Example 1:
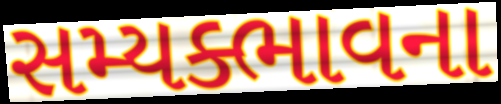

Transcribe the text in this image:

સમ્યક્ભાવના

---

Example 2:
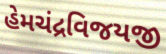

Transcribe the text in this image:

હેમચંદ્રવિજયજી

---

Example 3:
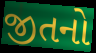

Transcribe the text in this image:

જીતનો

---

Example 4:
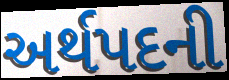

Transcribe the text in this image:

અર્થપદની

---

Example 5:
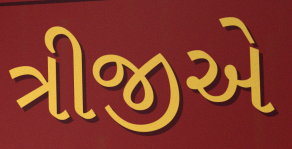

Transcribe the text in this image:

ત્રીજીએ